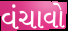
વંચાવો